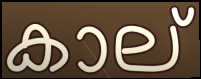
കാല്